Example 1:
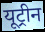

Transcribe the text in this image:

यूट्रीन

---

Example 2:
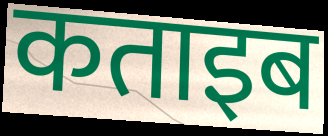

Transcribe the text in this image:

कताइब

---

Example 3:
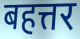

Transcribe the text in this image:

बहत्तर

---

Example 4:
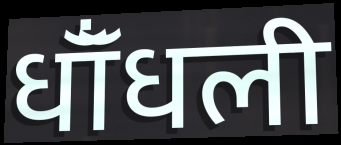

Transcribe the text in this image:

धॉँधली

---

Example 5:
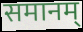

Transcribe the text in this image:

समानम्